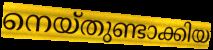
നെയ്തുണ്ടാക്കിയ